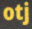
otj